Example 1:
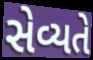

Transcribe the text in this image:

સેવ્યતે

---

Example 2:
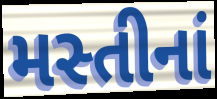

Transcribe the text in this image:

મસ્તીનાં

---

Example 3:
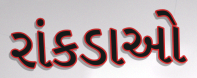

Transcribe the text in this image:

રાંકડાઓ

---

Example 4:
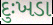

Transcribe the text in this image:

દુઃખડા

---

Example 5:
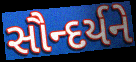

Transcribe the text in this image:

સૌન્દર્યને